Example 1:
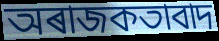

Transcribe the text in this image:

অৰাজকতাবাদ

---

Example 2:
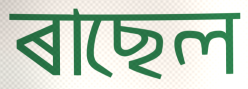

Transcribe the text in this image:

ৰাছেল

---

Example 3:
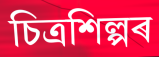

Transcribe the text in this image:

চিত্ৰশিল্পৰ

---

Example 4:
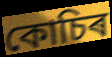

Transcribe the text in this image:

কোচিৰ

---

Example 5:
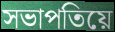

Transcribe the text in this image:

সভাপতিয়ে